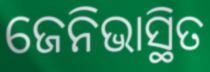
ଜେନିଭାସ୍ଥିତ